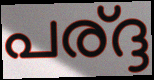
പര്ദ്ദ